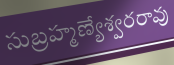
సుబ్రహ్మణ్యేశ్వరరావు